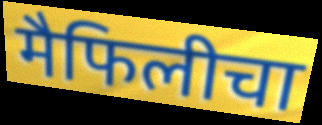
मैफिलीचा